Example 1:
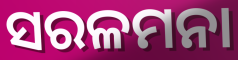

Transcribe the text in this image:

ସରଳମନା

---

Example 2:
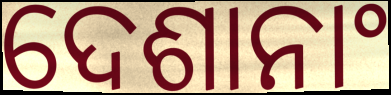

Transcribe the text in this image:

ଦେଶାନାଂ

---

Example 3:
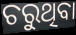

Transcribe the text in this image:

ଚରୁଥିବା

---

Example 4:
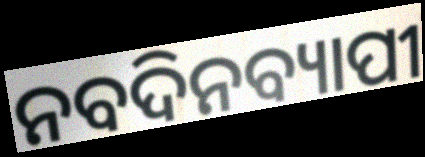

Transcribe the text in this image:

ନବଦିନବ୍ୟାପୀ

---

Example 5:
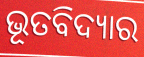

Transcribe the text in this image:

ଭୂତବିଦ୍ୟାର